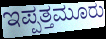
ಇಪ್ಪತ್ತಮೂರು